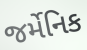
જર્મેનિક